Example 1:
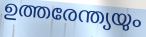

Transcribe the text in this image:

ഉത്തരേന്ത്യയും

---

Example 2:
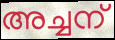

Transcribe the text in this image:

അച്ചന്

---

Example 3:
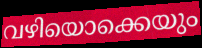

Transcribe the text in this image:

വഴിയൊക്കെയും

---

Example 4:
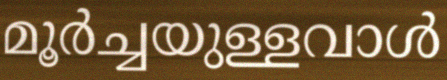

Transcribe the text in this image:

മൂർച്ചയുള്ളവാൾ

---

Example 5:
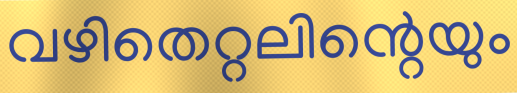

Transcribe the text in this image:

വഴിതെറ്റലിന്റെയും